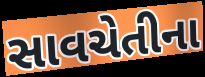
સાવચેતીના